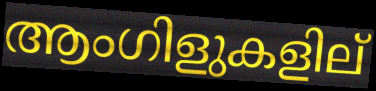
ആംഗിളുകളില്